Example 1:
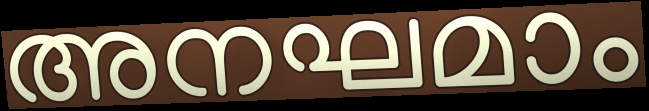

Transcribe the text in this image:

അനഘമാം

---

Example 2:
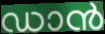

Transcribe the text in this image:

ഡാൻ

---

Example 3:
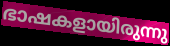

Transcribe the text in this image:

ഭാഷകളായിരുന്നു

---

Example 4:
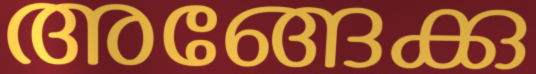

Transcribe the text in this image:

അങ്ങേക്കു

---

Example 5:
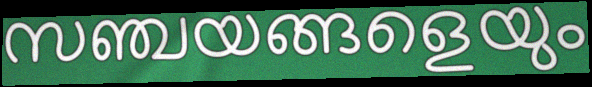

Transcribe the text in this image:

സഞ്ചയങ്ങളെയും